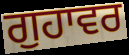
ਗੁਹਾਵਰ